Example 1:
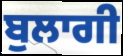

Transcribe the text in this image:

ਬੁਲਾਗੀ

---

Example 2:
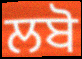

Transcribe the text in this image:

ਲਬੋ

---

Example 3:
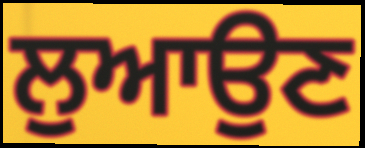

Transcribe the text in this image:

ਲੁਆਉਣ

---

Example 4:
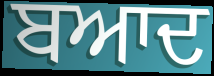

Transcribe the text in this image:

ਬਆਦ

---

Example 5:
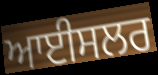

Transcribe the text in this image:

ਆਈਸਲਰ